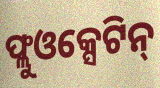
ଫ୍ଲୁଓକ୍ସେଟିନ୍